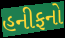
હનીફનો